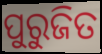
ପୁରୁଜିତ